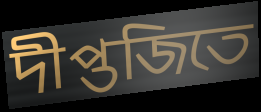
দীপ্তজিতে